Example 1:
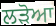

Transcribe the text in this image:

ਲੜੋਆ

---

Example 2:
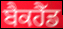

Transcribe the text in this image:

ਬੈਕਹੈੱਡ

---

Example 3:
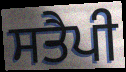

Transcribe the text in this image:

ਸਤੈਪੀ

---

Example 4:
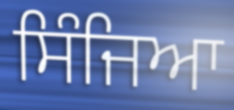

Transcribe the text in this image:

ਸਿੰਜਿਆ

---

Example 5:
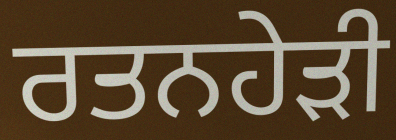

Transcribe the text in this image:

ਰਤਨਹੇੜੀ